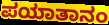
ಪಯಾತಾನಂ